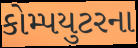
કોમ્પયુટરના